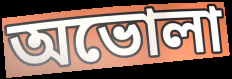
অভোলা